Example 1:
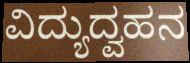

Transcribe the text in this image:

ವಿದ್ಯುದ್ವಹನ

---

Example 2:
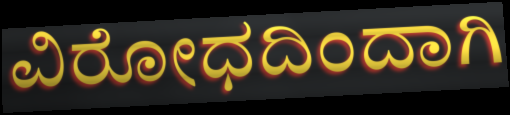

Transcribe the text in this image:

ವಿರೋಧದಿಂದಾಗಿ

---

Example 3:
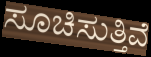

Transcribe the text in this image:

ಸೂಚಿಸುತ್ತಿವೆ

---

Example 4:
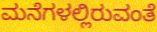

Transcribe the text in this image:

ಮನೆಗಳಲ್ಲಿರುವಂತೆ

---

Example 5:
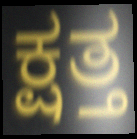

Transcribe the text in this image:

ಕ್ಷತ್ತ